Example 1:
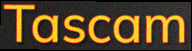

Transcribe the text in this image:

Tascam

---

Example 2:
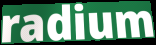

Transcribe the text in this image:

radium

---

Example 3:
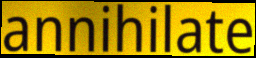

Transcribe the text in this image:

annihilate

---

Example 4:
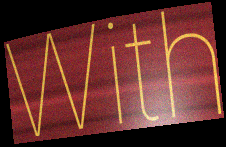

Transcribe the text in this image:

With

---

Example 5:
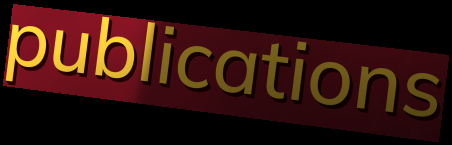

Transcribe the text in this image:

publications